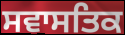
ਸਵਾਸਤਿਕ